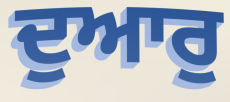
ਦੁਆਰੁ